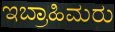
ಇಬ್ರಾಹಿಮರು